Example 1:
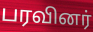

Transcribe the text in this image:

பரவினர்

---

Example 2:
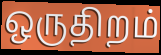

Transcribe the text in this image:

ஒருதிறம்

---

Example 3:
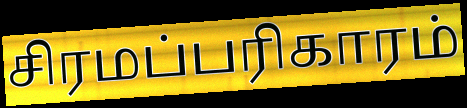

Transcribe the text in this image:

சிரமப்பரிகாரம்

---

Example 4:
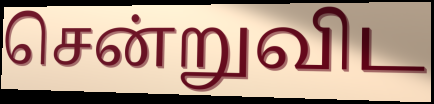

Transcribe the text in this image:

சென்றுவிட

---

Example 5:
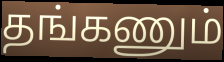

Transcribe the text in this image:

தங்கணும்